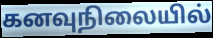
கனவுநிலையில்